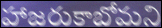
హాజరుకాబోమని